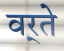
वर्ते